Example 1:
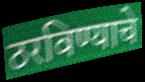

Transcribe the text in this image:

ठरविण्याचे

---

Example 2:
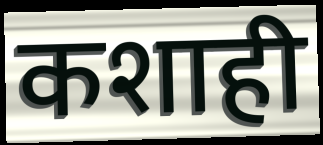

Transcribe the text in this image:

कशाही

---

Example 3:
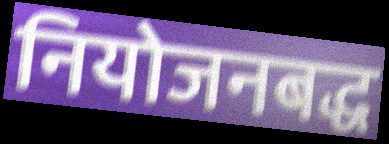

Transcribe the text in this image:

नियोजनबद्ध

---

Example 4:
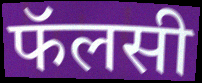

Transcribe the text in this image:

फॅलसी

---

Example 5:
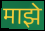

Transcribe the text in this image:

माझे